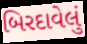
બિરદાવેલું